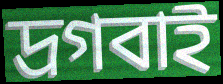
দ্রগবাই